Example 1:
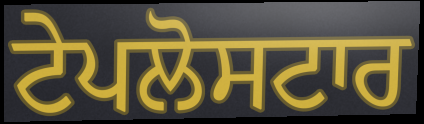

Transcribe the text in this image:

ਟੇਪਲੋਸਟਾਰ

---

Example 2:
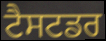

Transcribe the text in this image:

ਟੈਸਟਡਰ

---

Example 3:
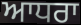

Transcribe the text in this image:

ਆਧਰਾ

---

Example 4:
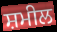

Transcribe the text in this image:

ਸ਼ਮੀਲ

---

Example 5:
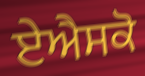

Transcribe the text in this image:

ਏਐਸਕੋ